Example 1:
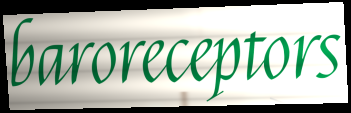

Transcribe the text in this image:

baroreceptors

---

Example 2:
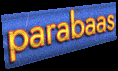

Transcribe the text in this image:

parabaas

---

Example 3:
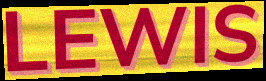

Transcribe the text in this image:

LEWIS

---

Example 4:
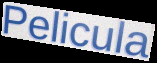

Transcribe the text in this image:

Pelicula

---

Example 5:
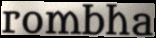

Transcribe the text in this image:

rombha